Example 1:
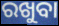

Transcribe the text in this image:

ରଖୁବା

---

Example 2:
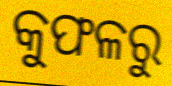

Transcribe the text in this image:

କୁଫଳରୁ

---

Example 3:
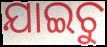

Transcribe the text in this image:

ଯାଇଚୁ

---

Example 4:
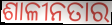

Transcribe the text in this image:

ଶାଳୀନତାର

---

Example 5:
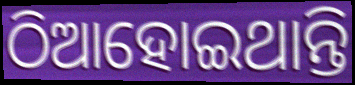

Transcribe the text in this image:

ଠିଆହୋଇଥାନ୍ତି